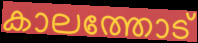
കാലത്തോട്